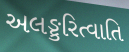
અલઙ્કરિત્વાતિ